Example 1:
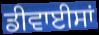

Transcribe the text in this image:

ਡੀਵਾਈਸਾਂ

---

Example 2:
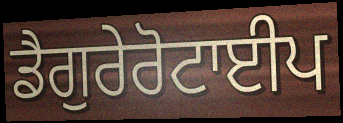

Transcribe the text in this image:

ਡੈਗੁਰੇਰੋਟਾਈਪ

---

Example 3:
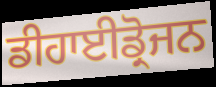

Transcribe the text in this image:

ਡੀਹਾਈਡ੍ਰੋਜਨ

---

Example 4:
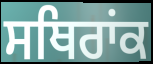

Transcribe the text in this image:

ਸਥਿਰਾਂਕ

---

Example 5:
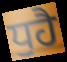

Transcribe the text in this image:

ਧੁਹੈ